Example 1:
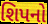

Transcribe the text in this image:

શિપનો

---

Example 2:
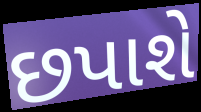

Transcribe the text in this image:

છપાશે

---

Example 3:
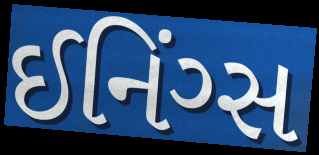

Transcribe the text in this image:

ઈનિંગ્સ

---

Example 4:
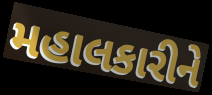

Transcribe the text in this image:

મહાલકારીને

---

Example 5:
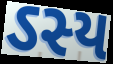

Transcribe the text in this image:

ઽસ્ય